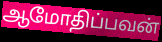
ஆமோதிப்பவன்